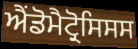
ਐਂਡੋਮੈਟ੍ਰੋਸਿਸਸ